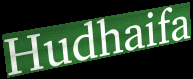
Hudhaifa